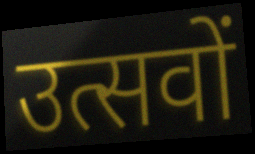
उत्सवों